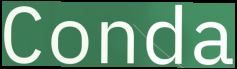
Conda